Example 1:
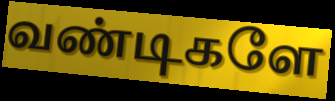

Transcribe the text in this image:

வண்டிகளே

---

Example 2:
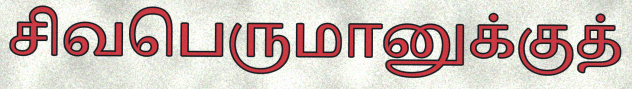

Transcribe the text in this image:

சிவபெருமானுக்குத்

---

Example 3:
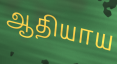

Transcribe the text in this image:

ஆதியாய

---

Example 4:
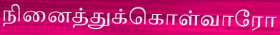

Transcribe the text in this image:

நினைத்துக்கொள்வாரோ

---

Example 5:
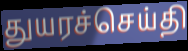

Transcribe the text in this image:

துயரச்செய்தி